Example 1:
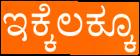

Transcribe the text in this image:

ಇಕ್ಕೆಲಕ್ಕೂ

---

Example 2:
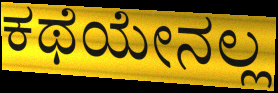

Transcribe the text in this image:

ಕಥೆಯೇನಲ್ಲ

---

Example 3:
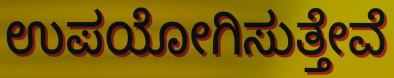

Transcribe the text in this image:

ಉಪಯೋಗಿಸುತ್ತೇವೆ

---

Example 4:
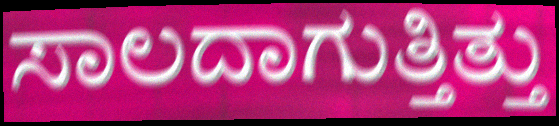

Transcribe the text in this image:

ಸಾಲದಾಗುತ್ತಿತ್ತು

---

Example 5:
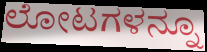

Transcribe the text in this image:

ಲೋಟಗಳನ್ನೂ